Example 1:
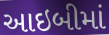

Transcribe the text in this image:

આઇબીમાં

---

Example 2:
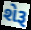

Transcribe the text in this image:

શેરૂ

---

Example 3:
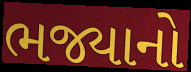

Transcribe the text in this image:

ભજ્યાનો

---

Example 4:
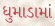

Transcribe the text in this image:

ધુમાડામાં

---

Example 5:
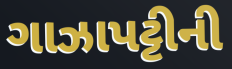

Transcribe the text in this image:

ગાઝાપટ્ટીની